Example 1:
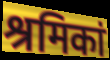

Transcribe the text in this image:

श्रमिकां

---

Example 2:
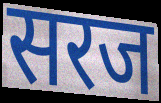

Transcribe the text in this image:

सरज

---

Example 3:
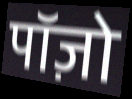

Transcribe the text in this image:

पॉज़ो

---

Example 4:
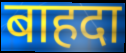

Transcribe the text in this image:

बाहदा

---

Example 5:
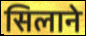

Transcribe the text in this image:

सिलाने